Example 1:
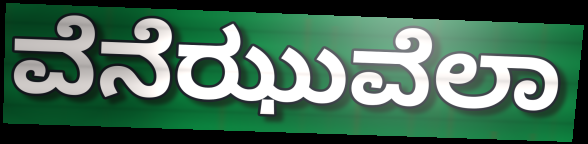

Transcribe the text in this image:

ವೆನೆಝುವೆಲಾ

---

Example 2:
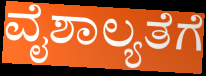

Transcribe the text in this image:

ವೈಶಾಲ್ಯತೆಗೆ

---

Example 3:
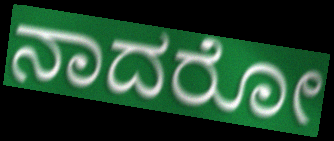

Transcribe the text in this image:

ನಾದರೋ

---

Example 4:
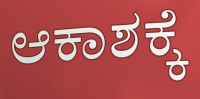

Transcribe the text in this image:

ಆಕಾಶಕ್ಕೆ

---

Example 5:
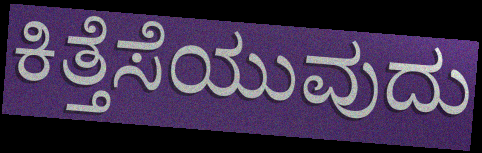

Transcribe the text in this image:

ಕಿತ್ತೆಸೆಯುವುದು